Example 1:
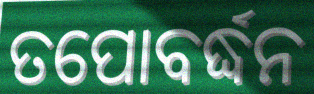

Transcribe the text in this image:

ତପୋବର୍ଦ୍ଧନ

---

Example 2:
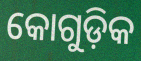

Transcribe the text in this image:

କୋଗୁଡ଼ିକ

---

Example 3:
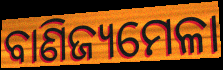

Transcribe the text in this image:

ବାଣିଜ୍ୟମେଳା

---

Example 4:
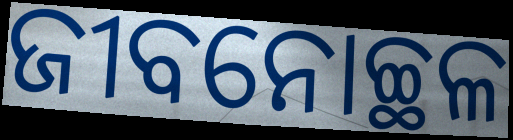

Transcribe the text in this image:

ଜୀବନୋଚ୍ଛଳ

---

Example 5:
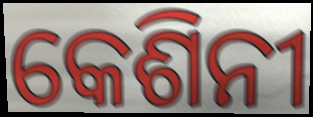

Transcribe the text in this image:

କେଶିନୀ